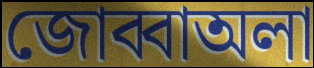
জোব্বাঅলা